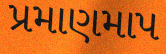
પ્રમાણમાપ